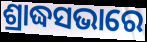
ଶ୍ରାଦ୍ଧସଭାରେ